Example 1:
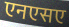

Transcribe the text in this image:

एनएसए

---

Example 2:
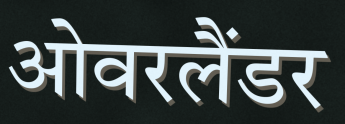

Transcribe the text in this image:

ओवरलैंडर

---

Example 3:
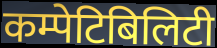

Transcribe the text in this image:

कम्पेटिबिलिटी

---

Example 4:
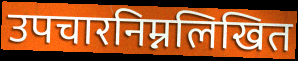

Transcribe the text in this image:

उपचारनिम्नलिखित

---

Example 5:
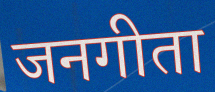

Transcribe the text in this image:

जनगीता